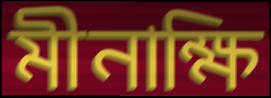
মীনাক্ষি